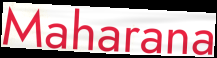
Maharana